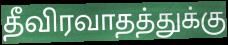
தீவிரவாதத்துக்கு